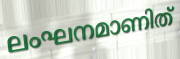
ലംഘനമാണിത്